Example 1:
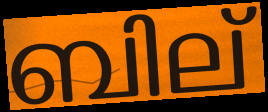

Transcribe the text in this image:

ബില്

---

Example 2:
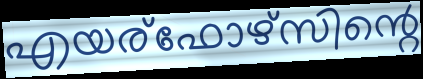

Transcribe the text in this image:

എയര്ഫോഴ്സിന്റെ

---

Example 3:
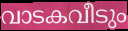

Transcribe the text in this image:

വാടകവീടും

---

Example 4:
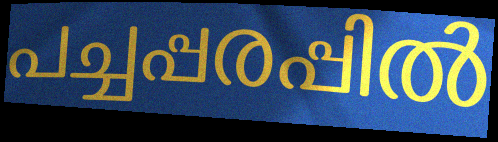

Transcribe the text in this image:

പച്ചപ്പരപ്പിൽ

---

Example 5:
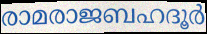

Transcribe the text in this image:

രാമരാജബഹദൂർ